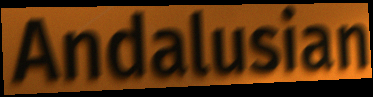
Andalusian